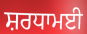
ਸ਼ਰਧਾਮਈ